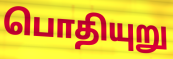
பொதியுறு